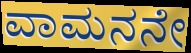
ವಾಮನನೇ